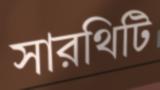
সারথিটি